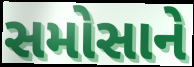
સમોસાને